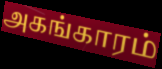
அகங்காரம்